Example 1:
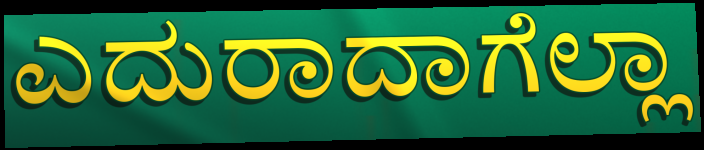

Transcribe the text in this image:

ಎದುರಾದಾಗೆಲ್ಲಾ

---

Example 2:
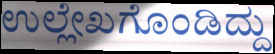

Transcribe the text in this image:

ಉಲ್ಲೇಖಗೊಂಡಿದ್ದು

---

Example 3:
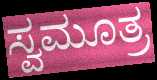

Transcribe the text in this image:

ಸ್ವಮೂತ್ರ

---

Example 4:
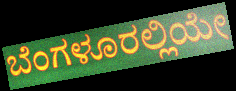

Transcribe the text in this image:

ಬೆಂಗಳೂರಲ್ಲಿಯೇ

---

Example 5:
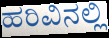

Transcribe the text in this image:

ಹರಿವಿನಲ್ಲಿ